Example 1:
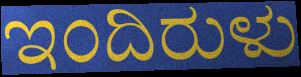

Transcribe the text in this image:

ಇಂದಿರುಳು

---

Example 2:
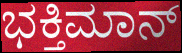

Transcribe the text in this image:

ಭಕ್ತಿಮಾನ್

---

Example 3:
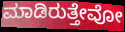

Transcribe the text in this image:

ಮಾಡಿರುತ್ತೇವೋ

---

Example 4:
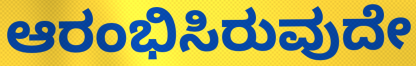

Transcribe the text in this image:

ಆರಂಭಿಸಿರುವುದೇ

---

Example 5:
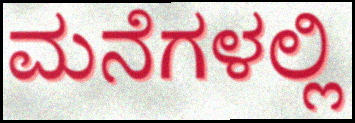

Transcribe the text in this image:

ಮನೆಗಳಲ್ಲಿ